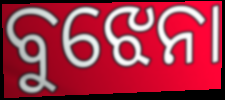
ବୁଝେନା